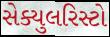
સેક્યુલરિસ્ટો